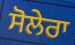
ਸੋਲੇਰਾ